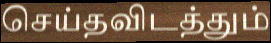
செய்தவிடத்தும்